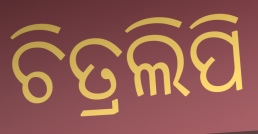
ଚିତ୍ରଲିପି